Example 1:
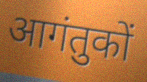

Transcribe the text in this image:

आगंतुकों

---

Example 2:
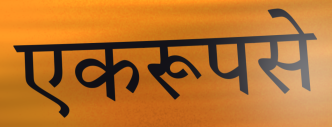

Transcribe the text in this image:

एकरूपसे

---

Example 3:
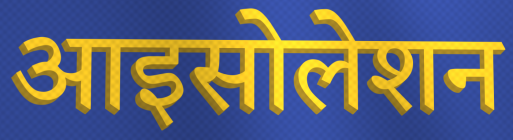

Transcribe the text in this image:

आइसोलेशन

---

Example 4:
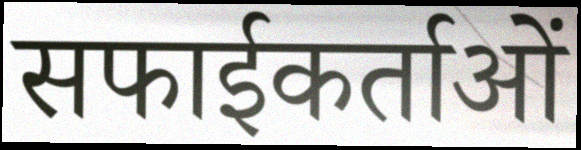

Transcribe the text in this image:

सफाईकर्ताओं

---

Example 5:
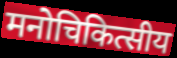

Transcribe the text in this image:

मनोचिकित्सीय